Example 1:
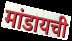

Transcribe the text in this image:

मांडायची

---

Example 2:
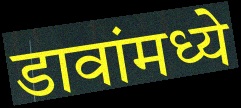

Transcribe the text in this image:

डावांमध्ये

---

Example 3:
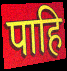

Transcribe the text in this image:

पाहि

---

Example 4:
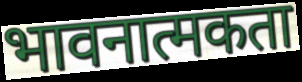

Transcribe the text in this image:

भावनात्मकता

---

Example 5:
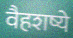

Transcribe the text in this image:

वैहशष्ये